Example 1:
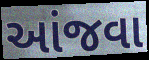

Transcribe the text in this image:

આંજવા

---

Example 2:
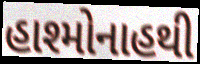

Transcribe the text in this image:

હાશ્મોનાહથી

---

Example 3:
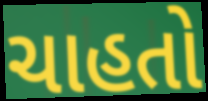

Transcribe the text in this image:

ચાહતો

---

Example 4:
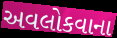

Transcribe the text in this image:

અવલોકવાના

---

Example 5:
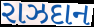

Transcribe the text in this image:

રાઝદાન